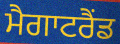
ਮੈਗਾਟਰੈਂਡ